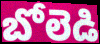
బోలెడి